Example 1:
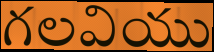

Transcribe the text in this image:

గలవియు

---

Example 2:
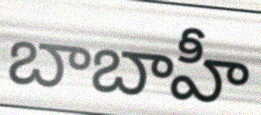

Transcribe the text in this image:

బాబాహీ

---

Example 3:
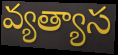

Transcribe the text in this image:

వ్యత్యాస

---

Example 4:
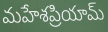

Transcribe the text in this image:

మహేశప్రియామ్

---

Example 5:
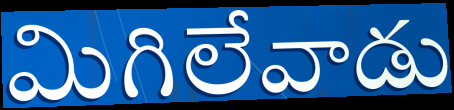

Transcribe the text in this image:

మిగిలేవాడు